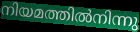
നിയമത്തിൽനിന്നു